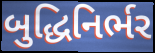
બુદ્ધિનિર્ભર